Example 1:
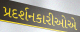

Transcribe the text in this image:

પ્રદર્શનકારીઓએ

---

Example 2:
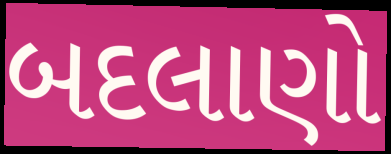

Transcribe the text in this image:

બદલાણો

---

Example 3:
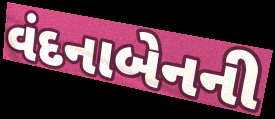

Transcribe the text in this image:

વંદનાબેનની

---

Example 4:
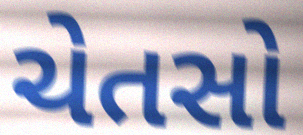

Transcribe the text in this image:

ચેતસો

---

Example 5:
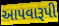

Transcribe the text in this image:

આપવારૂપી